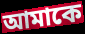
আমাকে